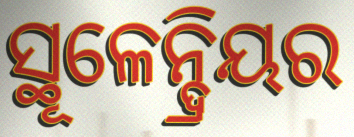
ସ୍ଥୂଳେନ୍ଦ୍ରିୟର